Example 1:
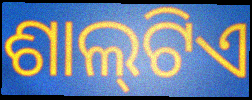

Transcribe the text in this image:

ଶାଲ୍‌ଟିଏ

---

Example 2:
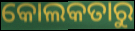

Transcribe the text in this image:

କୋଲକତାରୁ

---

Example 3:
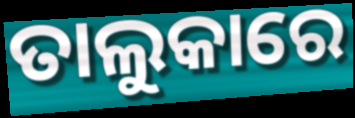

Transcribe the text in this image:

ତାଲୁକାରେ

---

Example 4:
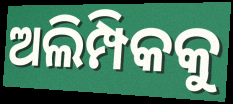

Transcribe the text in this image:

ଅଲିମ୍ପିକକୁ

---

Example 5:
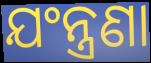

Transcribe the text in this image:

ଯଂନ୍ତ୍ରଣା